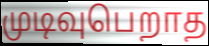
முடிவுபெறாத